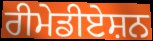
ਰੀਮੇਡੀਏਸ਼ਨ